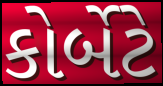
કોર્બેટે